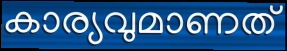
കാര്യവുമാണത്